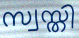
സ്വസ്തി